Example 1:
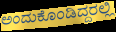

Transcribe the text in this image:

ಅಂದುಕೊಂಡಿದ್ದರಲ್ಲಿ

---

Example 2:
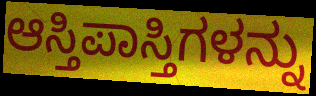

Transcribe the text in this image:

ಆಸ್ತಿಪಾಸ್ತಿಗಳನ್ನು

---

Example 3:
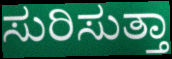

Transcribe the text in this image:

ಸುರಿಸುತ್ತಾ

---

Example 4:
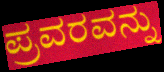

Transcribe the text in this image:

ಪ್ರವರವನ್ನು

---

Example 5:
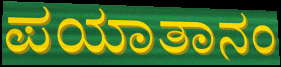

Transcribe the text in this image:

ಪಯಾತಾನಂ